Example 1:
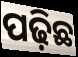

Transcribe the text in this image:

ପଢ଼ିଛ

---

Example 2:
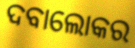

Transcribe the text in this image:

ଦବାଲୋକର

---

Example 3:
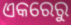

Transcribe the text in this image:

ଏକରେରୁ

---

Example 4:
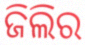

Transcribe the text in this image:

ଜିଲିର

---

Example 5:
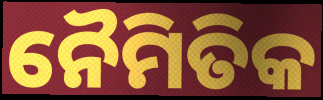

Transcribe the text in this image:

ନୈମିତିକ